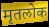
मृतलोक